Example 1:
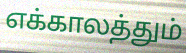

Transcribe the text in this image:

எக்காலத்தும்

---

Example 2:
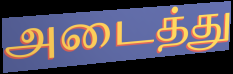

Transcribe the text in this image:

அடைத்து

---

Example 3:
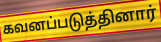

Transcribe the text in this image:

கவனப்படுத்தினார்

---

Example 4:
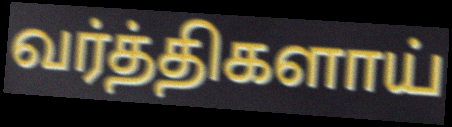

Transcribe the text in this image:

வர்த்திகளாய்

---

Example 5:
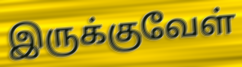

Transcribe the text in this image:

இருக்குவேள்